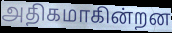
அதிகமாகின்றன